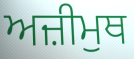
ਅਜ਼ੀਮੁਥ